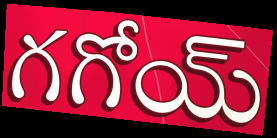
గగోయ్